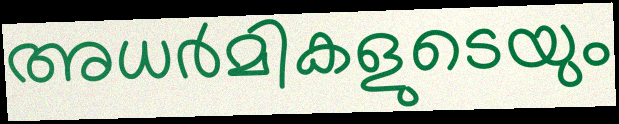
അധർമികളുടെയും